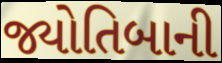
જ્યોતિબાની